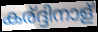
കര്ദ്ദിനാള്